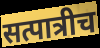
सत्पात्रीच